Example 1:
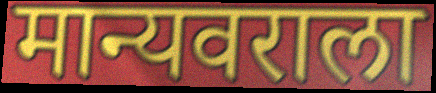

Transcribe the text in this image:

मान्यवराला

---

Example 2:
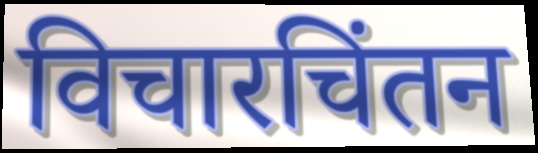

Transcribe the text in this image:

विचारचिंतन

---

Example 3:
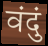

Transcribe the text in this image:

वंदुं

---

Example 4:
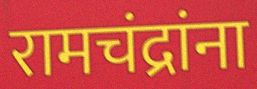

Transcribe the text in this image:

रामचंद्रांना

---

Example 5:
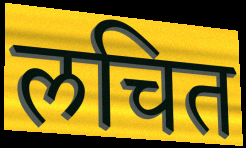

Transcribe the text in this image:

लचित